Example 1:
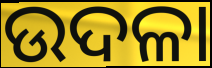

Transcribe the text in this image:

ଉଦଳା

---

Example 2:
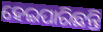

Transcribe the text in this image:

ହେଇପାରିଛନ୍ତି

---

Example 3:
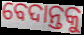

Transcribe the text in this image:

ବେଦାନ୍ତକୁ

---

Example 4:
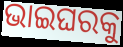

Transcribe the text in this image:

ଭାଇଘରକୁ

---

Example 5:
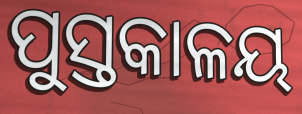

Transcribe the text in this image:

ପୁସ୍ତକାଳୟ